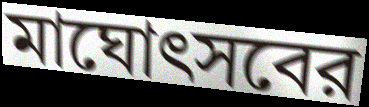
মাঘোৎসবের